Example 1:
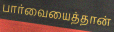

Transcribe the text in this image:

பார்வையைத்தான்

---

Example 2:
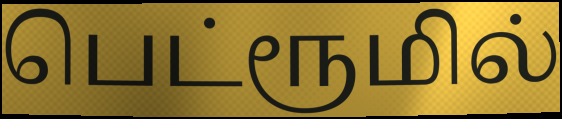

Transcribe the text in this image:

பெட்ரூமில்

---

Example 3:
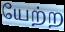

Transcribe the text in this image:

யேற்ற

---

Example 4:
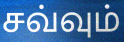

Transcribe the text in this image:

சவ்வும்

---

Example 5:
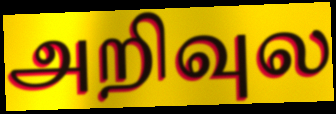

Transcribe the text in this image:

அறிவுல